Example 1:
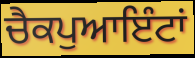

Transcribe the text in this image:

ਚੈਕਪੁਆਇੰਟਾਂ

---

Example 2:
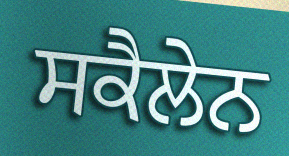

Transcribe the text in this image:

ਸਕੈਲੇਨ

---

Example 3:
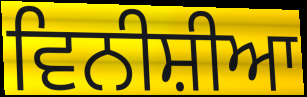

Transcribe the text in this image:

ਵਿਨੀਸ਼ੀਆ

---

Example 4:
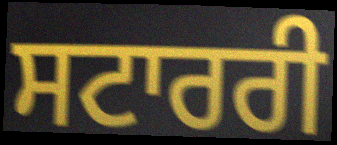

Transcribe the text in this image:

ਸਟਾਰਰੀ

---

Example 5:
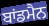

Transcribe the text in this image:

ਬਾਂਡਮੈਨ